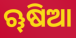
ୠଷିଆ